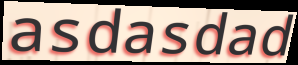
asdasdad